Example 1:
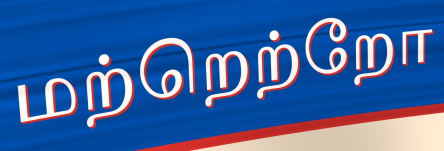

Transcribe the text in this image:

மற்றெற்றோ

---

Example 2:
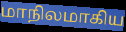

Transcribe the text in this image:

மாநிலமாகிய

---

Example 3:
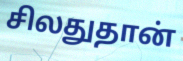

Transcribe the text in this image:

சிலதுதான்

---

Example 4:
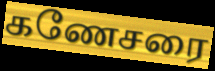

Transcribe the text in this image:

கணேசரை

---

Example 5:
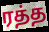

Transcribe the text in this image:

ரத்த